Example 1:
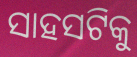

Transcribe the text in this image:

ସାହସଟିକୁ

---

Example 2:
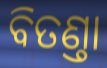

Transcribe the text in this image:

ବିତଣ୍ତା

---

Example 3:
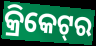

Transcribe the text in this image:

କ୍ରିକେଟ୍‌ର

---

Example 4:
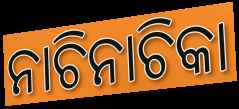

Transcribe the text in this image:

ନାଚିନାଚିକା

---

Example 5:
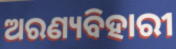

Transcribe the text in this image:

ଅରଣ୍ୟବିହାରୀ